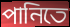
পানিতে